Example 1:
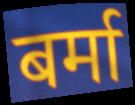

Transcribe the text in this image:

बर्मा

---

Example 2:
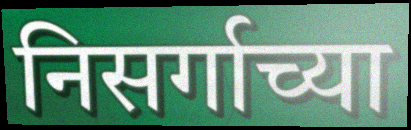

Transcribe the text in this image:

निसर्गाच्या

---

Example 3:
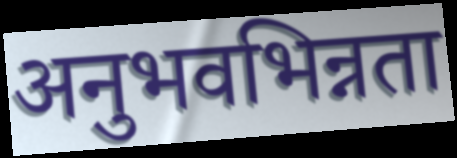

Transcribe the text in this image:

अनुभवभिन्नता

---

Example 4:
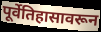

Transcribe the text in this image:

पूर्वेतिहासावरून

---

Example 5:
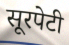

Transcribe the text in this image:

सूरपेटी